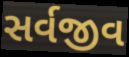
સર્વજીવ